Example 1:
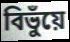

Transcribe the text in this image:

বিভুঁয়ে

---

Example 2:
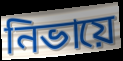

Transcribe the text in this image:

নিভায়ে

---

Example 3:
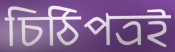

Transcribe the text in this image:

চিঠিপত্রই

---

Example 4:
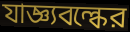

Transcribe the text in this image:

যাজ্ঞ্যবল্কের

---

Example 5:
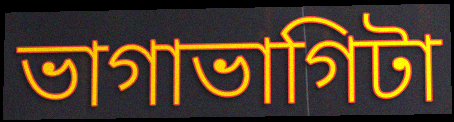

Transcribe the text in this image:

ভাগাভাগিটা